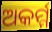
ଅକର୍ମ୍ମ